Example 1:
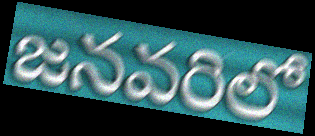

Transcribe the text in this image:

జనవరిలో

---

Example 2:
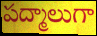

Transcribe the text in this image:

పద్మాలుగా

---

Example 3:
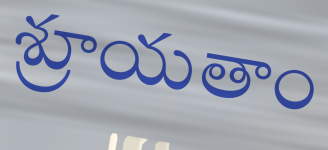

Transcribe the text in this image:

శ్రూయతాం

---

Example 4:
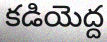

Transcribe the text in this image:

కడియెద్ద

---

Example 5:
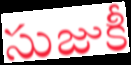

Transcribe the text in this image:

సుజుకీ